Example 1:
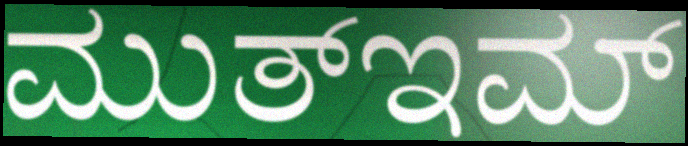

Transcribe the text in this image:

ಮುತ್ಇಮ್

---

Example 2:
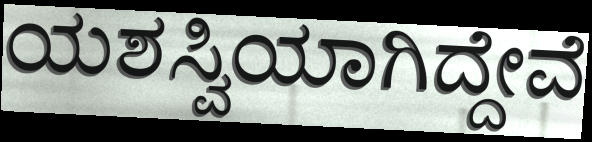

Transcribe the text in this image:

ಯಶಸ್ವಿಯಾಗಿದ್ದೇವೆ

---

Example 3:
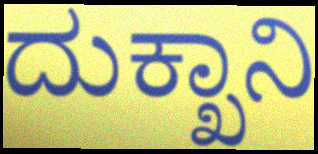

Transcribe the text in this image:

ದುಕ್ಖಾನಿ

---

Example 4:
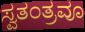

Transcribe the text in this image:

ಸ್ವತಂತ್ರವೂ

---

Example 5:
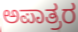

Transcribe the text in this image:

ಅಪಾತ್ರರ